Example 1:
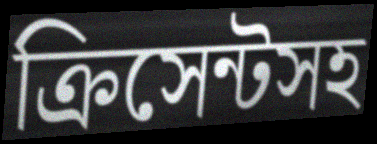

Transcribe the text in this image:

ক্রিসেন্টসহ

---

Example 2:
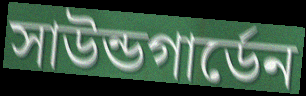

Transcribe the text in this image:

সাউন্ডগার্ডেন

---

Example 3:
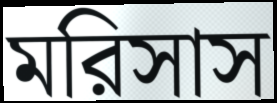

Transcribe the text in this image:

মরিসাস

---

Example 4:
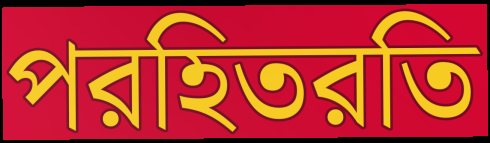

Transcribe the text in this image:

পরহিতরতি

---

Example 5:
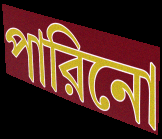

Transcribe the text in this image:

পারিনো